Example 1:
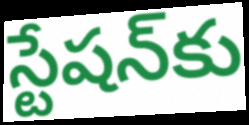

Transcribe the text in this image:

స్టేషన్‍కు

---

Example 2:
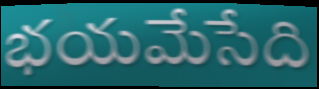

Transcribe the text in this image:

భయమేసేది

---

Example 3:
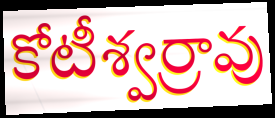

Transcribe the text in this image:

కోటీశ్వర్రావు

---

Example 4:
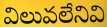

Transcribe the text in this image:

విలువలేనివి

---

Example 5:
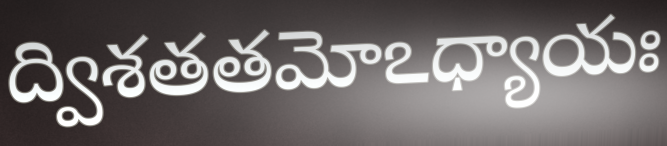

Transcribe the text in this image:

ద్విశతతమోఽధ్యాయః